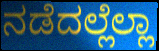
ನಡೆದಲ್ಲೆಲ್ಲಾ